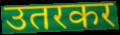
उतरकर